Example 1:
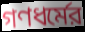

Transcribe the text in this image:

গণধর্মের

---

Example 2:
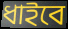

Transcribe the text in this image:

ধাইবে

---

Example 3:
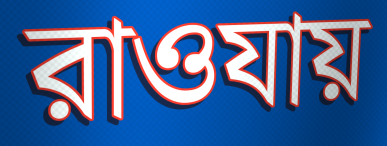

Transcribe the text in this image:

রাওযায়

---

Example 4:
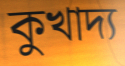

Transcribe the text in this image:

কুখাদ্য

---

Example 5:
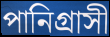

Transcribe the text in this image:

পানিগ্রাসী